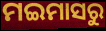
ମଇମାସରୁ